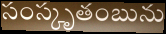
సంస్కృతంబును